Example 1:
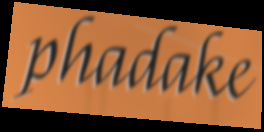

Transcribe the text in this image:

phadake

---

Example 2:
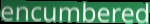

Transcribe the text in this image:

encumbered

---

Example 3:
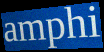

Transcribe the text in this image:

amphi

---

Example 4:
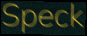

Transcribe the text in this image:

Speck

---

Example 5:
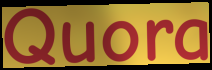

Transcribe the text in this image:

Quora